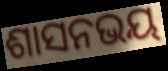
ଶାସନଭୟ